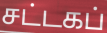
சட்டகப்